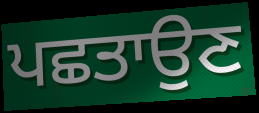
ਪਛਤਾਉਣ